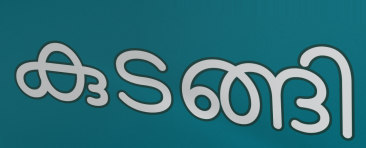
കുടങ്ങി